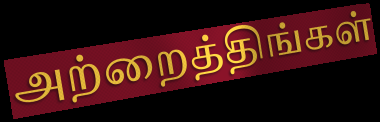
அற்றைத்திங்கள்